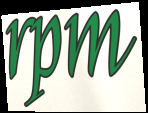
rpm